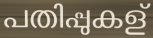
പതിപ്പുകള്